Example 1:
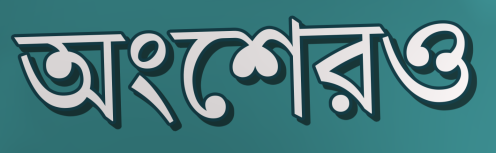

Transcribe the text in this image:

অংশেরও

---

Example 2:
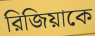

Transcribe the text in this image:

রিজিয়াকে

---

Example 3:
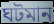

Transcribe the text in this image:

ঘটমান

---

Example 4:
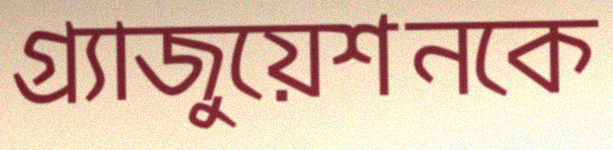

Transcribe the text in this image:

গ্র্যাজুয়েশনকে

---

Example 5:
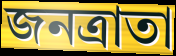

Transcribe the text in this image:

জনত্রাতা